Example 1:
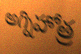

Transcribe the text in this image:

అగ్నిహోత్ర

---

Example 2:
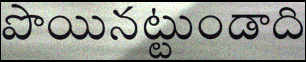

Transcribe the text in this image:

పొయినట్టుండాది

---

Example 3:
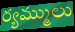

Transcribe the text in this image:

ర్యమ్ములు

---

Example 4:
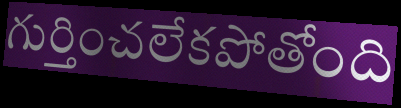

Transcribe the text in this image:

గుర్తించలేకపోతోంది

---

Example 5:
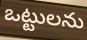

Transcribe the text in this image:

ఒట్టులను